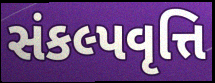
સંકલ્પવૃત્તિ